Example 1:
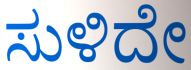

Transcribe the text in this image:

ಸುಳಿದೇ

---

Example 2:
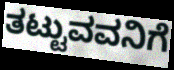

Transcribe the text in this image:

ತಟ್ಟುವವನಿಗೆ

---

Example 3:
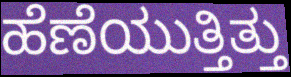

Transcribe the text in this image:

ಹೆಣೆಯುತ್ತಿತ್ತು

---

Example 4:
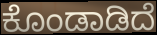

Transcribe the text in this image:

ಕೊಂಡಾಡಿದೆ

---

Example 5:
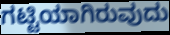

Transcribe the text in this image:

ಗಟ್ಟಿಯಾಗಿರುವುದು